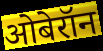
ओबेरॉन